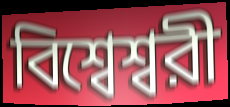
বিশ্বেশ্বরী